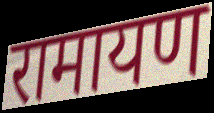
रामायण